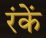
रंकें